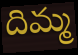
దిమ్మ